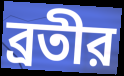
ব্রতীর